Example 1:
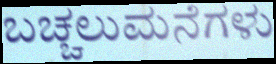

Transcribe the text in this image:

ಬಚ್ಚಲುಮನೆಗಳು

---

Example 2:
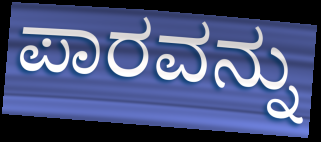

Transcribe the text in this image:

ಪಾರವನ್ನು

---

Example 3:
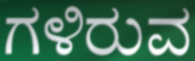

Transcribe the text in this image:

ಗಳಿರುವ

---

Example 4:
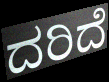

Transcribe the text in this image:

ದರಿದೆ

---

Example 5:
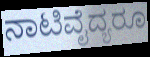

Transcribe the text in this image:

ನಾಟಿವೈದ್ಯರೂ